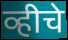
व्हीचे